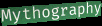
Mythography